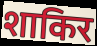
शाकिर